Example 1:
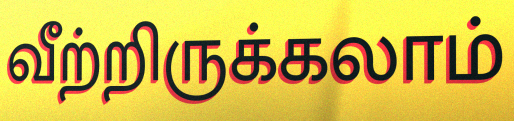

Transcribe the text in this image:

வீற்றிருக்கலாம்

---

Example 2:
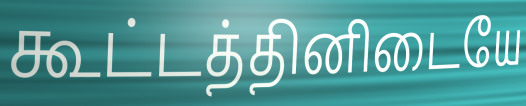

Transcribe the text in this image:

கூட்டத்தினிடையே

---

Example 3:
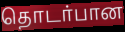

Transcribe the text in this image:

தொடர்பான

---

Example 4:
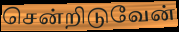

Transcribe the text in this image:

சென்றிடுவேன்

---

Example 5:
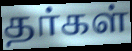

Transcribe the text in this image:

தர்கள்